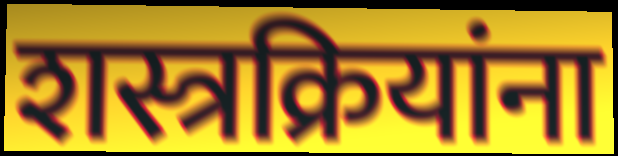
शस्त्रक्रियांना